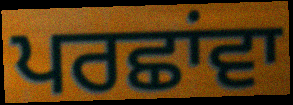
ਪਰਛਾਂਵਾ